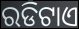
ରଡିଟାଏ